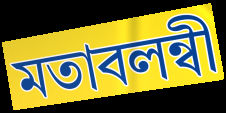
মতাবলন্বী